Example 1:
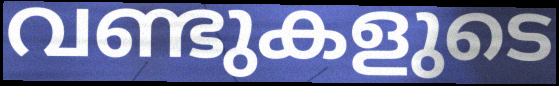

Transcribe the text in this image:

വണ്ടുകളുടെ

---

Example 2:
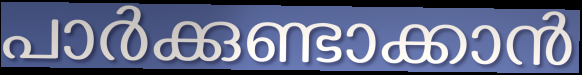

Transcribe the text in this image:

പാർക്കുണ്ടാക്കാൻ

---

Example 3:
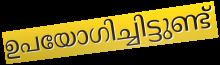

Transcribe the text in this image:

ഉപയോഗിച്ചിട്ടുണ്ട്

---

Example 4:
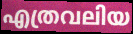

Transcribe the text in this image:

എത്രവലിയ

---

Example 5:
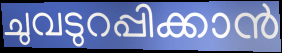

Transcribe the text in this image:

ചുവടുറപ്പിക്കാൻ